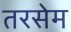
तरसेम